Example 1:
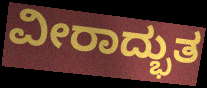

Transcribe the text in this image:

ವೀರಾದ್ಭುತ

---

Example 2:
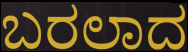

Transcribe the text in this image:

ಬರಲಾದ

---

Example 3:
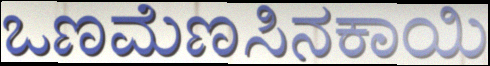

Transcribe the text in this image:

ಒಣಮೆಣಸಿನಕಾಯಿ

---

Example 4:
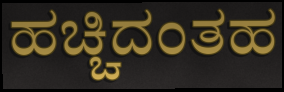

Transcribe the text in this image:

ಹಚ್ಚಿದಂತಹ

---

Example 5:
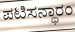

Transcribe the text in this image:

ಪಟಿಸನ್ಥಾರಂ